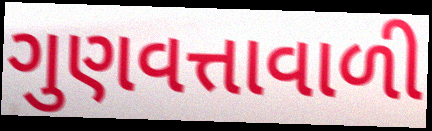
ગુણવત્તાવાળી